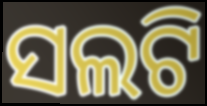
ସଲଟି